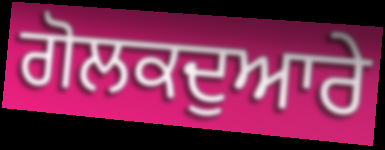
ਗੋਲਕਦੁਆਰੇ